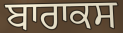
ਬਾਰਾਕਸ